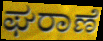
ಘರಾಣೆ